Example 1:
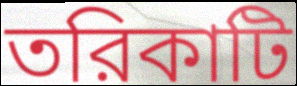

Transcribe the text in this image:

তরিকাটি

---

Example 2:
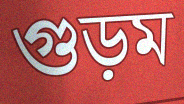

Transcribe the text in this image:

গুড়ম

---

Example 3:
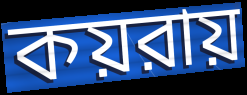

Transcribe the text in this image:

কয়রায়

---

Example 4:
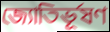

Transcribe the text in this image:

জ্যোতির্ভূষণ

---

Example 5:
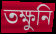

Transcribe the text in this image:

তক্ষুনি